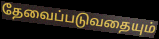
தேவைப்படுவதையும்